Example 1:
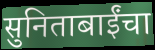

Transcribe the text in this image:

सुनिताबाईंचा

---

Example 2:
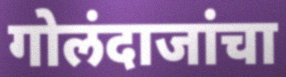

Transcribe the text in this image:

गोलंदाजांचा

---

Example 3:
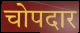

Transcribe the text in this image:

चोपदार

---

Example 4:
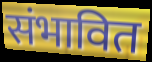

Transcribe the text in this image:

संभावित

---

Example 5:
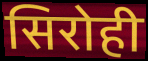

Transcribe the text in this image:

सिरोही